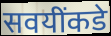
सवयींकडे